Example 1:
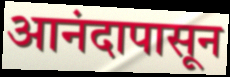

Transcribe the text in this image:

आनंदापासून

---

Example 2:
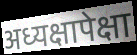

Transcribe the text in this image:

अध्यक्षापेक्षा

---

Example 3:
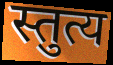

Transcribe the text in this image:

स्तुत्य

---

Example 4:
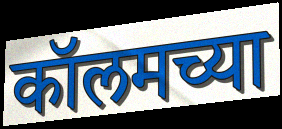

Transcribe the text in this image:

कॉलमच्या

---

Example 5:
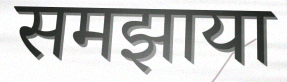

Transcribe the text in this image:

समझाया